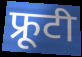
फ्रूटी